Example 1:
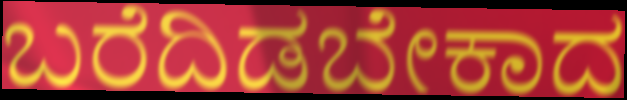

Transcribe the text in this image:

ಬರೆದಿಡಬೇಕಾದ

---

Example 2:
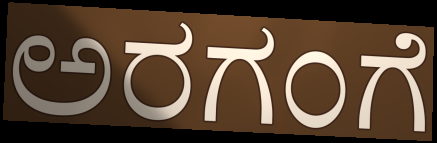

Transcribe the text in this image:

ಅರಗಂಗೆ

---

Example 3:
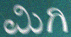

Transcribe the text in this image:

ಮಿಗಿ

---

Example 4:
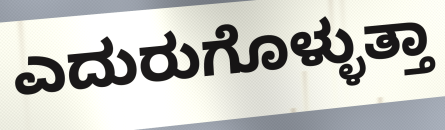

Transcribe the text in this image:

ಎದುರುಗೊಳ್ಳುತ್ತಾ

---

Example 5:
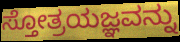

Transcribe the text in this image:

ಸ್ತೋತ್ರಯಜ್ಞವನ್ನು